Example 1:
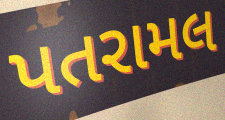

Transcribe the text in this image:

પતરામલ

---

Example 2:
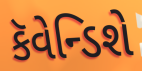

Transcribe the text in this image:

કૅવેન્ડિશે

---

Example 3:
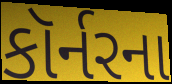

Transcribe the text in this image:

કૉર્નરના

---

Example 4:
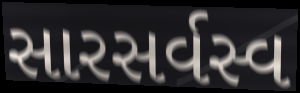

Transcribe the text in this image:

સારસર્વસ્વ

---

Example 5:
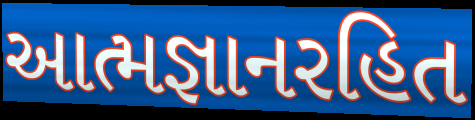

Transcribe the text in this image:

આત્મજ્ઞાનરહિત